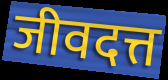
जीवदत्त